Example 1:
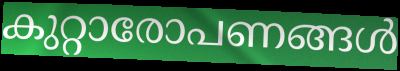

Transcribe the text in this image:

കുറ്റാരോപണങ്ങൾ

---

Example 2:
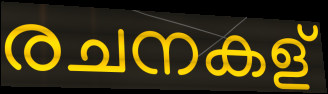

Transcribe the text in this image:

രചനകള്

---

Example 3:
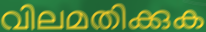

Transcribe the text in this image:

വിലമതിക്കുക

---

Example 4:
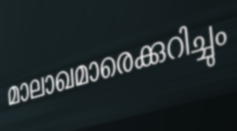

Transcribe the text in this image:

മാലാഖമാരെക്കുറിച്ചും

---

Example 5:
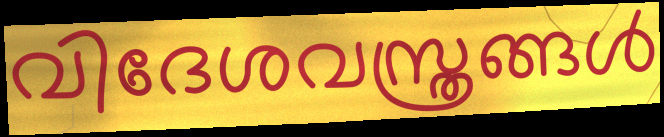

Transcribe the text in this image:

വിദേശവസ്ത്രങ്ങൾ